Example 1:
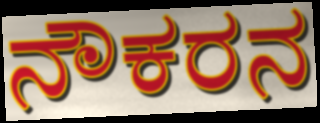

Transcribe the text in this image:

ನೌಕರನ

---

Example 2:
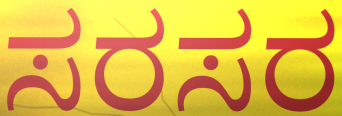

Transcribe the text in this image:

ಸರಸರ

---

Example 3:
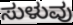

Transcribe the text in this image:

ಸುಳುವು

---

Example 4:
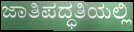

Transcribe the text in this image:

ಜಾತಿಪದ್ಧತಿಯಲ್ಲಿ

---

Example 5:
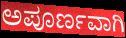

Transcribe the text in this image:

ಅಪೂರ್ಣವಾಗಿ